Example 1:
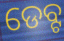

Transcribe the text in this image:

ଡେବ୍ଟ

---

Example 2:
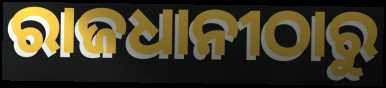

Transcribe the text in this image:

ରାଜଧାନୀଠାରୁ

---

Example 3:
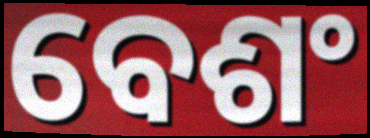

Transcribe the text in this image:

ବେଶଂ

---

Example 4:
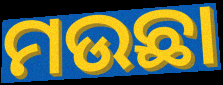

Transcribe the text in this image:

ମଉଛା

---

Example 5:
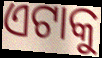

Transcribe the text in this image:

ଏଟାକୁ